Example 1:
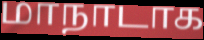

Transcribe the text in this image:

மாநாடாக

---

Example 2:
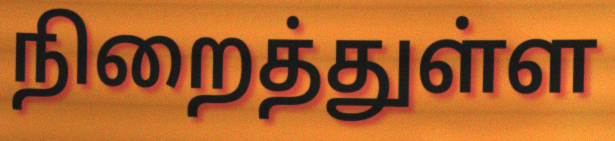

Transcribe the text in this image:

நிறைத்துள்ள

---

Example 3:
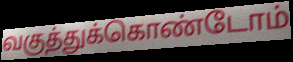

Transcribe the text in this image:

வகுத்துக்கொண்டோம்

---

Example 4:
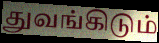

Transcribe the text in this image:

துவங்கிடும்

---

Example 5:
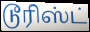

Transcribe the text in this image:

டூரிஸ்ட்